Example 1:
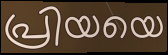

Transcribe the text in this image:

പ്രിയയെ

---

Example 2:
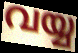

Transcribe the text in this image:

വയ്യ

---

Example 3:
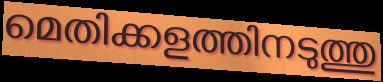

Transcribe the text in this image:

മെതിക്കളത്തിനടുത്തു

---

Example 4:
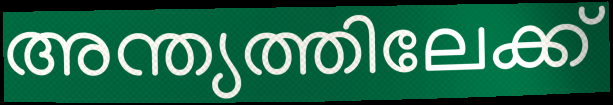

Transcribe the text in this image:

അന്ത്യത്തിലേക്ക്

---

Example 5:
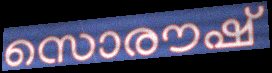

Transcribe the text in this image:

സൊരൗഷ്